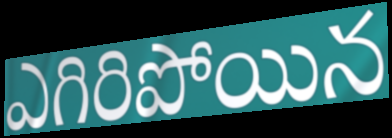
ఎగిరిపోయిన